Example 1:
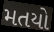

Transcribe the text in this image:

મતયો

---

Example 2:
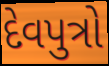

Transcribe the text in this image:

દેવપુત્રો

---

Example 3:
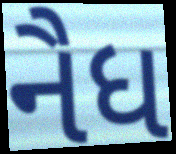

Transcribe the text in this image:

નૈધ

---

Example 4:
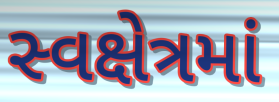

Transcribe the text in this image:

સ્વક્ષેત્રમાં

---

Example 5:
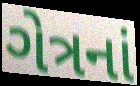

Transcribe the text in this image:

ગેત્રનાં